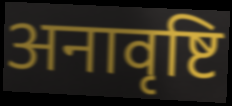
अनावृष्टि